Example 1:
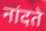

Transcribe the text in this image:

नांदते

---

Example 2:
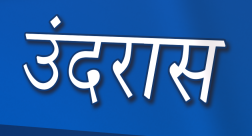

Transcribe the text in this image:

उंदरास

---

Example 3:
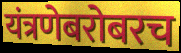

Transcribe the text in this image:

यंत्रणेबरोबरच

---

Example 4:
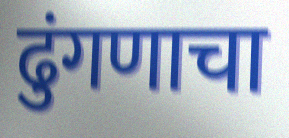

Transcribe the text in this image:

ढुंगणाचा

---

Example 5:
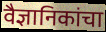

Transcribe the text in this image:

वैज्ञानिकांचा